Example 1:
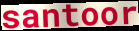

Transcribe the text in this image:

santoor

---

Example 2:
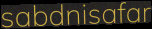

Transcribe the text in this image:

sabdnisafar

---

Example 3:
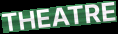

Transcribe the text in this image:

THEATRE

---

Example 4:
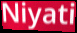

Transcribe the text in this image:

Niyati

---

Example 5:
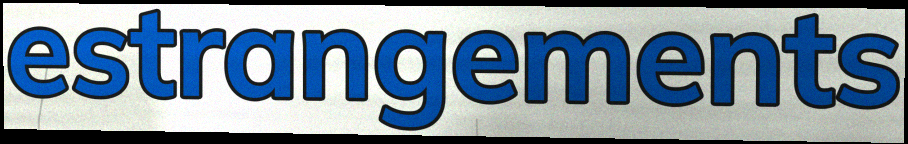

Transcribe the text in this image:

estrangements